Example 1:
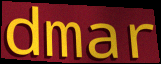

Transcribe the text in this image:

dmar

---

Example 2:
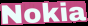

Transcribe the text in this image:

Nokia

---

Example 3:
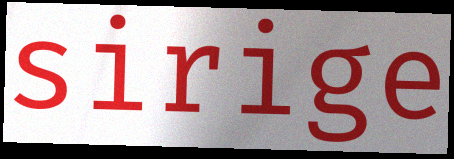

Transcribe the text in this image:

sirige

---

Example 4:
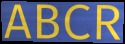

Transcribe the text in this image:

ABCR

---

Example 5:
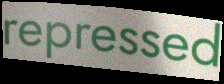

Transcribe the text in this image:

repressed